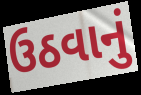
ઉઠવાનું